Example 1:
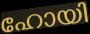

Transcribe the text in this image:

ഹോയി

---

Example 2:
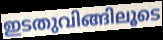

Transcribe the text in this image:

ഇടതുവിങ്ങിലൂടെ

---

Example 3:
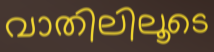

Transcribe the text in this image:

വാതിലിലൂടെ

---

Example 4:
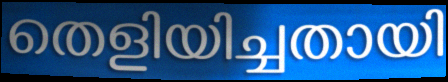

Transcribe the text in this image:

തെളിയിച്ചതായി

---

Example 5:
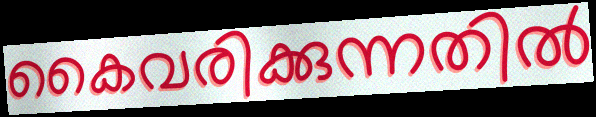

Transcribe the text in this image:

കൈവരിക്കുന്നതിൽ